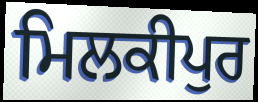
ਮਿਲਕੀਪੁਰ